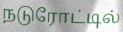
நடுரோட்டில்